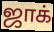
ஜாக்